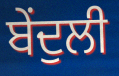
ਬੇਂਦੁਲੀ